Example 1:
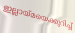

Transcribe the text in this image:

ഇല്ലായ്മയെക്കുറിച്ച്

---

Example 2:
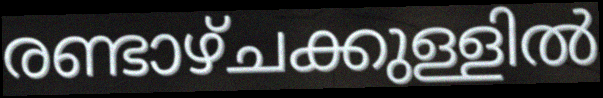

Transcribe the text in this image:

രണ്ടാഴ്ചക്കുള്ളിൽ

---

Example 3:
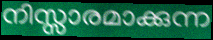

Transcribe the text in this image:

നിസ്സാരമാക്കുന്ന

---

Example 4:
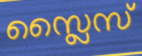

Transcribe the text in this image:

സ്ലൈസ്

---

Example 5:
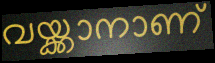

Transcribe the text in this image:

വയ്ക്കാനാണ്